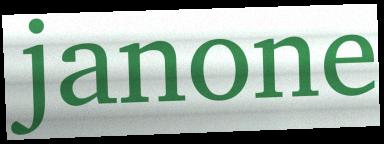
janone